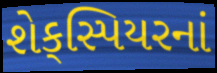
શેક્‌સ્પિયરનાં